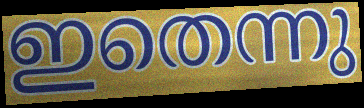
ഇതെന്നു